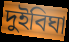
দুইবিঘা